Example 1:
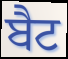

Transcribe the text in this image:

ਬੈਟ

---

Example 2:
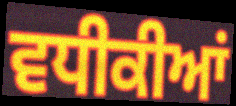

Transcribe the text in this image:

ਵਧੀਕੀਆਂ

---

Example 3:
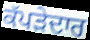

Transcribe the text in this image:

ਕੱਪੜੇਦਾਰ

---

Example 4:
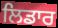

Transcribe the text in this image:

ਲਿਡਾਰ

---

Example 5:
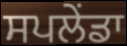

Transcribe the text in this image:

ਸਪਲੇਂਡਾ